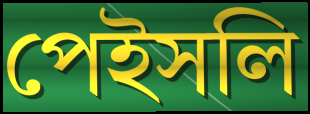
পেইসলি